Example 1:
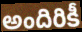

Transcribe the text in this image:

అందిరికీ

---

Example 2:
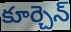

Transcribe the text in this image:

కూర్చెన్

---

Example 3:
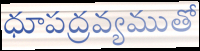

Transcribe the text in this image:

ధూపద్రవ్యముతో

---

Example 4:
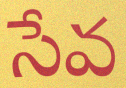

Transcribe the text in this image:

సేవ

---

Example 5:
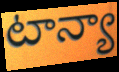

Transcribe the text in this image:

టాన్యా